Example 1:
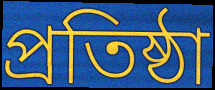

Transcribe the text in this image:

প্ৰতিষ্ঠা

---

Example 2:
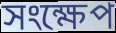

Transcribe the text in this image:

সংক্ষেপ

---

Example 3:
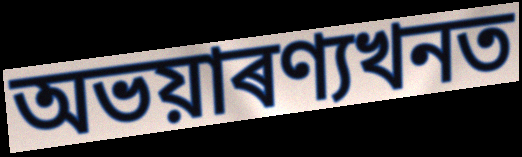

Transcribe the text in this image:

অভয়াৰণ্যখনত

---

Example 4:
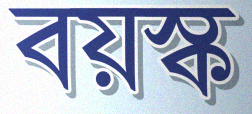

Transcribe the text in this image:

বয়স্ক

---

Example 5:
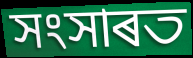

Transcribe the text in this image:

সংসাৰত